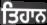
ਤਿਹਾਨ